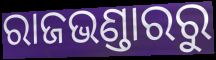
ରାଜଭଣ୍ଡାରରୁ